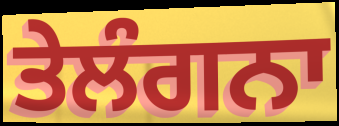
ਤੇਲੰਗਨਾ